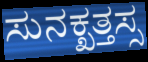
ಸುನಕ್ಖತ್ತಸ್ಸ